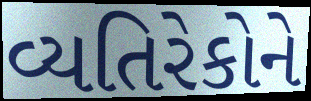
વ્યતિરેકોને